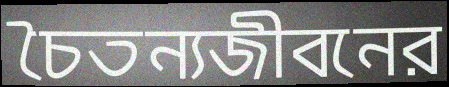
চৈতন্যজীবনের